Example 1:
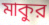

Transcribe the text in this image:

মাকুর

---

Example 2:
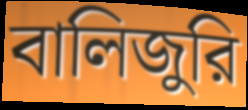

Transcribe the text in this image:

বালিজুরি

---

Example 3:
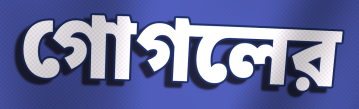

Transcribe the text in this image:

গোগলের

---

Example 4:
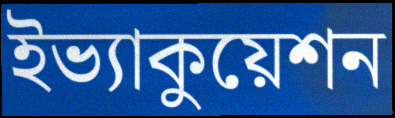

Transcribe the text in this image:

ইভ্যাকুয়েশন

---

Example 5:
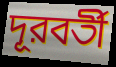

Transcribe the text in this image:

দূরবর্তী